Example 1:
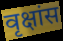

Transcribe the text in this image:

वृक्षांस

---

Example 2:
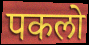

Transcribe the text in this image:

पकलो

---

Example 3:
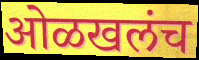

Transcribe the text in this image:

ओळखलंच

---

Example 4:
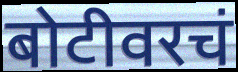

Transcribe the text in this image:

बोटीवरचं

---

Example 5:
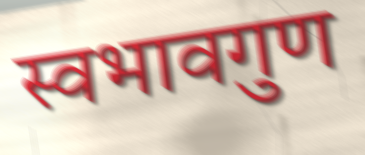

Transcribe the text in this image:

स्वभावगुण